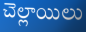
చెల్లాయిలు